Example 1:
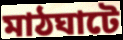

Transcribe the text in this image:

মাঠঘাটে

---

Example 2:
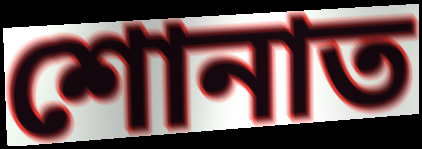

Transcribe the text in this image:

শোনাত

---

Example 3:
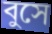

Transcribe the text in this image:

বুসে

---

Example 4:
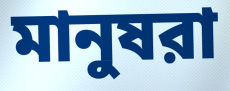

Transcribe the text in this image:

মানুষরা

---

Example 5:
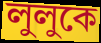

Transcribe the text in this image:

লুলুকে